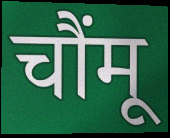
चौंमू